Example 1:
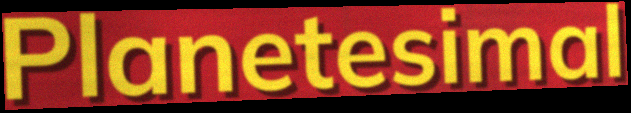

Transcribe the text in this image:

Planetesimal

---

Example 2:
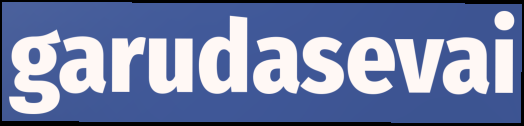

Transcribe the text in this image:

garudasevai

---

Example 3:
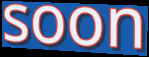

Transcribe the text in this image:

soon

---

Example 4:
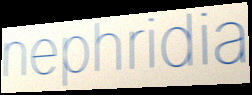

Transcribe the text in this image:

nephridia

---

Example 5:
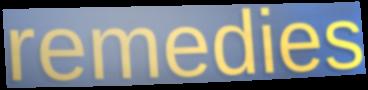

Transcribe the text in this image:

remedies